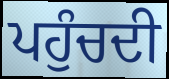
ਪਹੁੰਚਦੀ